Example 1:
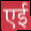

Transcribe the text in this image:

एई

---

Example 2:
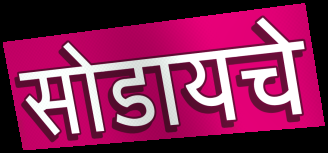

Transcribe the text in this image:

सोडायचे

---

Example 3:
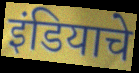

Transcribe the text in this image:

इंडियाचे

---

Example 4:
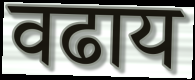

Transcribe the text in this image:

वढाय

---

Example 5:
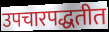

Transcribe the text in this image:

उपचारपद्धतीत